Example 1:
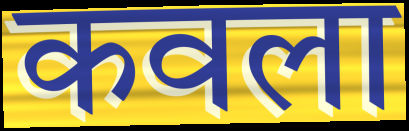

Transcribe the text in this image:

कवला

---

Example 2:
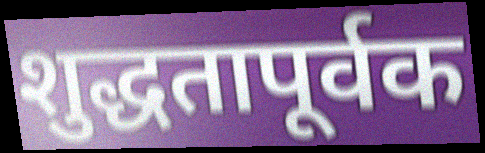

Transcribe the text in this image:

शुद्धतापूर्वक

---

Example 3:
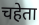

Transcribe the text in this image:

चहेता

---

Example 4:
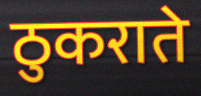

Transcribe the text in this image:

ठुकराते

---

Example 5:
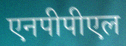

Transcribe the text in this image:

एनपीपीएल